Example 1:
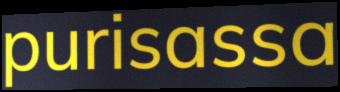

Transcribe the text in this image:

purisassa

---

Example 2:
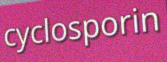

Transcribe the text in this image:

cyclosporin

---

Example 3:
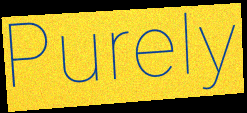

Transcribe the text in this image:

Purely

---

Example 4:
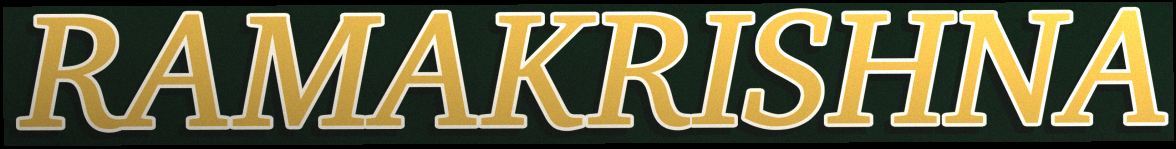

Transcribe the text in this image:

RAMAKRISHNA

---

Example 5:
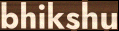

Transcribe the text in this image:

bhikshu